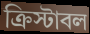
ক্রিস্টাবল